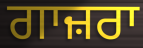
ਗਾਜ਼ਰਾ